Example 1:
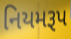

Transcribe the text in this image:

નિયમરૂપ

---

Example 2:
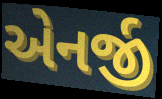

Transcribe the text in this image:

એનર્જી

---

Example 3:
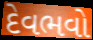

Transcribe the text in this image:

દેવભવો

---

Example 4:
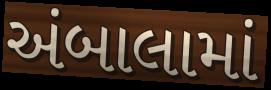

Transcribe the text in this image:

અંબાલામાં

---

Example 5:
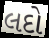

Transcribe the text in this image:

લદો